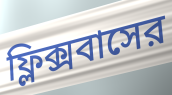
ফ্লিক্সবাসের